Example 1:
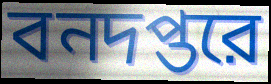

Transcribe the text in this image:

বনদপ্তরে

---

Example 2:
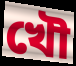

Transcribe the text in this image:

খৌ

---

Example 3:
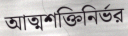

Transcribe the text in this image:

আত্মশক্তিনির্ভর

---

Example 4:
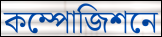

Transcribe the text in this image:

কম্পোজিশনে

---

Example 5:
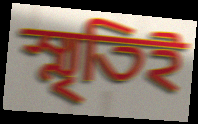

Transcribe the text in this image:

স্মৃতিই